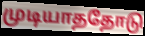
முடியாததோடு